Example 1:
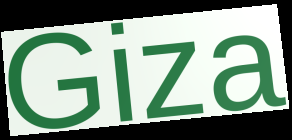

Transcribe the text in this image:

Giza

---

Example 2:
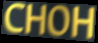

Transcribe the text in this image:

CHOH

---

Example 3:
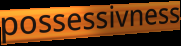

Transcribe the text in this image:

possessivness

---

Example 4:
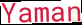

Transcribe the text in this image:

Yaman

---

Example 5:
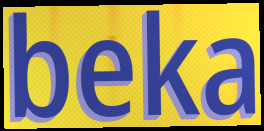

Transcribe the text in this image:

beka